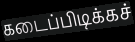
கடைப்பிடிக்கச்